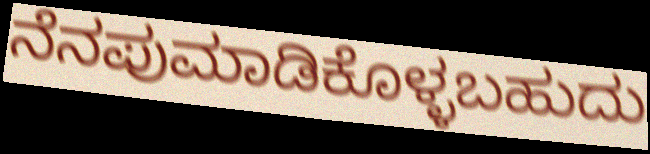
ನೆನಪುಮಾಡಿಕೊಳ್ಳಬಹುದು